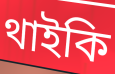
থাইকি